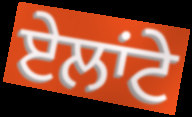
ਏਲਾਂਟੇ